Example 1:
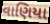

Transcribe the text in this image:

વાણિયા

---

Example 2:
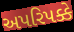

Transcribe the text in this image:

અપરિપક્કે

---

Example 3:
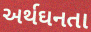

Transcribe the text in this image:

અર્થઘનતા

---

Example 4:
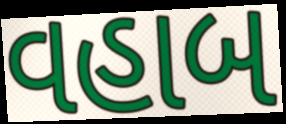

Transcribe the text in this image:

વહાબ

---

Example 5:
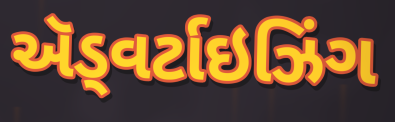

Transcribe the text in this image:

ઍડ્વર્ટાઇઝિંગ